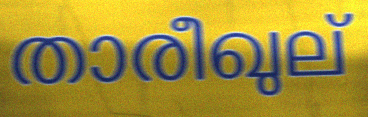
താരീഖുല്